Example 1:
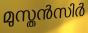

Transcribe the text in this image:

മുസ്തൻസിർ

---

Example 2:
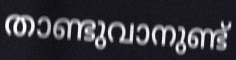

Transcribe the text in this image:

താണ്ടുവാനുണ്ട്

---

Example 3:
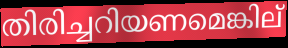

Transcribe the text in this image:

തിരിച്ചറിയണമെങ്കില്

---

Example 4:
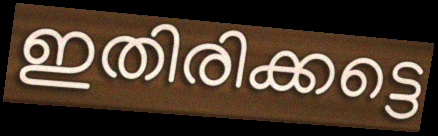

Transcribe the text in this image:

ഇതിരിക്കട്ടെ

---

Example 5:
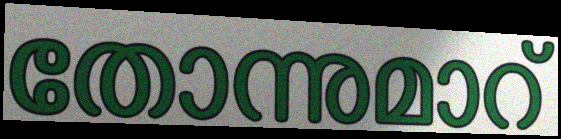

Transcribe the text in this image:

തോന്നുമാറ്